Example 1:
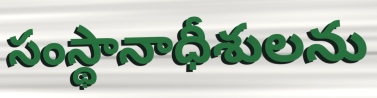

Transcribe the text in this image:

సంస్థానాధీశులను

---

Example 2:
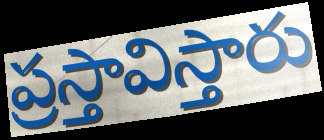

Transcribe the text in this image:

ప్రస్తావిస్తారు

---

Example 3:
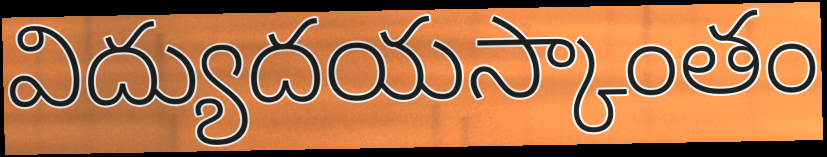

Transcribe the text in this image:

విద్యుదయస్కాంతం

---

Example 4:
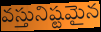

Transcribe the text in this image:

వస్తునిష్టమైన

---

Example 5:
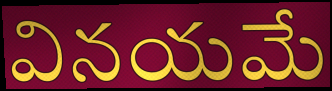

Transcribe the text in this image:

వినయమే